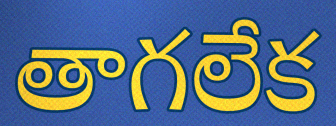
తాగలేక